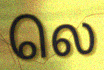
லெ